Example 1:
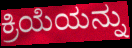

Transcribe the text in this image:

ಕ್ರಿಯೆಯನ್ನು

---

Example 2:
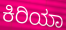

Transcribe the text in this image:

ಕಿರಿಯಾ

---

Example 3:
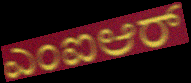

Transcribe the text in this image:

ಎಂಐಆರ್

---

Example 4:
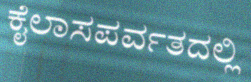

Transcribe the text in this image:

ಕೈಲಾಸಪರ್ವತದಲ್ಲಿ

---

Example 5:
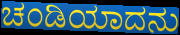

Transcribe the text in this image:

ಚಂಡಿಯಾದನು